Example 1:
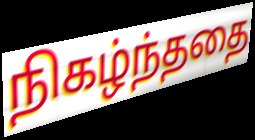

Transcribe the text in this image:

நிகழ்ந்ததை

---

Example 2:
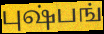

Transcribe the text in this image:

புஷ்பங்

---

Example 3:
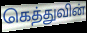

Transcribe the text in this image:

கெத்துவின்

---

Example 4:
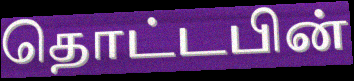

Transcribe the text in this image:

தொட்டபின்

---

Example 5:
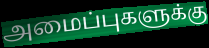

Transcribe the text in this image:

அமைப்புகளுக்கு